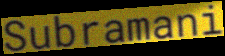
Subramani